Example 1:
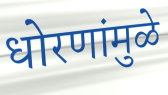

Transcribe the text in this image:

धोरणांमुळे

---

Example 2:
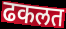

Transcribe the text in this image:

ढकलत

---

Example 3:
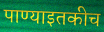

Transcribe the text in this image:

पाण्याइतकीच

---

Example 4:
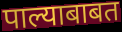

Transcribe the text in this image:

पाल्याबाबत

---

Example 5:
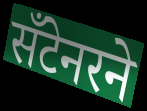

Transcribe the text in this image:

सँटेनरने